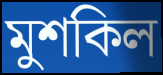
মুশকিল